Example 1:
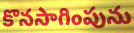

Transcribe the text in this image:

కొనసాగింపును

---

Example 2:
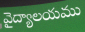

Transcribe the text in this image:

వైద్యాలయము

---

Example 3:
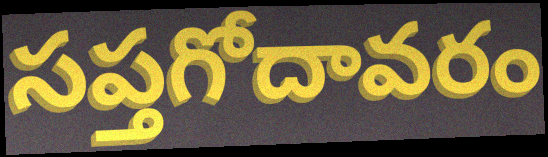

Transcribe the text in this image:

సప్తగోదావరం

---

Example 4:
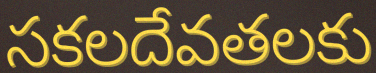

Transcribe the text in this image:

సకలదేవతలకు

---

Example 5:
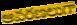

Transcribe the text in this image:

ఆవరణలుగా